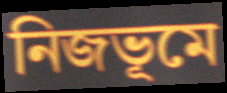
নিজভূমে